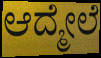
ಆದ್ಮೇಲೆ